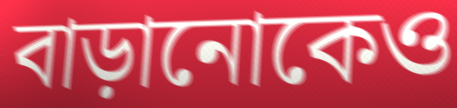
বাড়ানোকেও